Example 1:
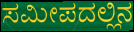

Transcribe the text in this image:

ಸಮೀಪದಲ್ಲಿನ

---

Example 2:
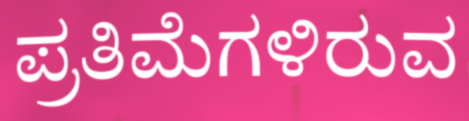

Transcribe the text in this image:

ಪ್ರತಿಮೆಗಳಿರುವ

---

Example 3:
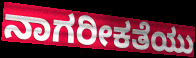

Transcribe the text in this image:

ನಾಗರೀಕತೆಯು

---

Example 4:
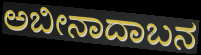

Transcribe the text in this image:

ಅಬೀನಾದಾಬನ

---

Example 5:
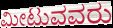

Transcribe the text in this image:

ಮೀಟುವವರು